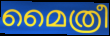
മൈത്രീ